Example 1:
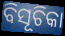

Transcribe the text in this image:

ବିସୂଚିକା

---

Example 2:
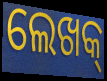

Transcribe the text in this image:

ଲେଖକ୍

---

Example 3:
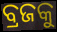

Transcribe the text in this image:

ବ୍ରଜକୁ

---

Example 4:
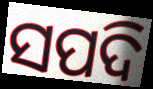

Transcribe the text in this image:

ସପଦି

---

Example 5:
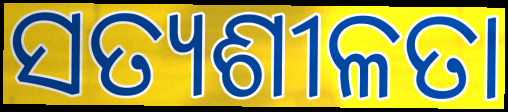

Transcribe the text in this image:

ସତ୍ୟଶୀଳତା